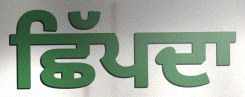
ਛਿੱਪਦਾ